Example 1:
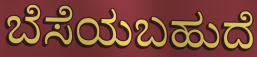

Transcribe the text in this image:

ಬೆಸೆಯಬಹುದೆ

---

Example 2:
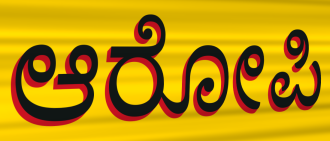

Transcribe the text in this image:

ಆರೋಪಿ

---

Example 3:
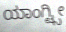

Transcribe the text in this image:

ಯಾಂಗ್ಟ್ಸೀ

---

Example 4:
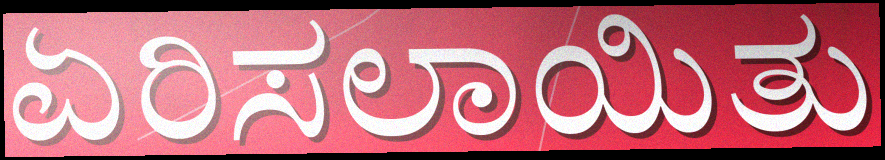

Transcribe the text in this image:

ಏರಿಸಲಾಯಿತು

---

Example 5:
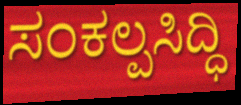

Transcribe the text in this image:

ಸಂಕಲ್ಪಸಿದ್ಧಿ